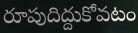
రూపుదిద్దుకోవటం